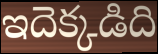
ఇదెక్కడిది